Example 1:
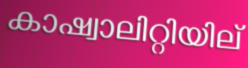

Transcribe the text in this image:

കാഷ്വാലിറ്റിയില്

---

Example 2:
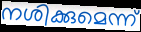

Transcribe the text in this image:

നശിക്കുമെന്ന്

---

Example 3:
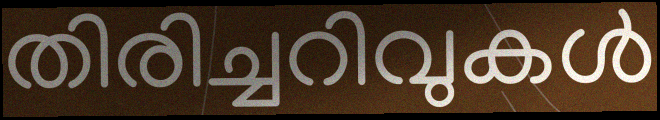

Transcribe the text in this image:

തിരിച്ചറിവുകൾ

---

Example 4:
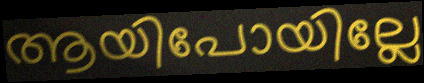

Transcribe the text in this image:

ആയിപോയില്ലേ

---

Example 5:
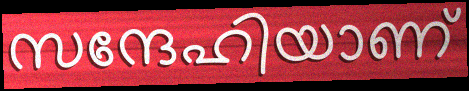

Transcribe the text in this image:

സന്ദേഹിയാണ്